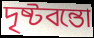
দৃষ্টবন্তো